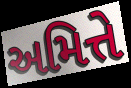
અમિત્તે